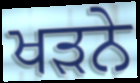
ਖੜਨੇ